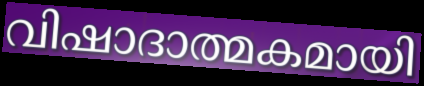
വിഷാദാത്മകമായി